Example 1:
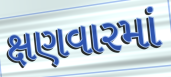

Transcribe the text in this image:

ક્ષણવારમાં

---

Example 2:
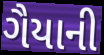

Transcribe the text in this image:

ગૈયાની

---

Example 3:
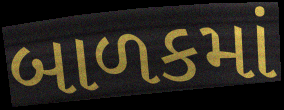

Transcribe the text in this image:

બાળકમાં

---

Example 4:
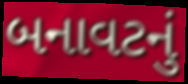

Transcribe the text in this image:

બનાવટનું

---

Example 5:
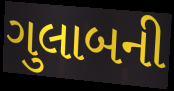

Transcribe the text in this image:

ગુલાબની